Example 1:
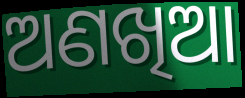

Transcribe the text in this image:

ଅଣଖିଆ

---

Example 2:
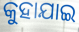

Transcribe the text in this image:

କୁହାଯାଇ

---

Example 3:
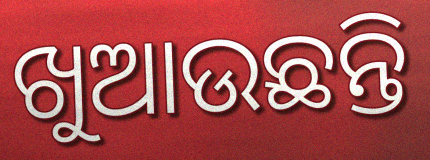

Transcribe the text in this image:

ଖୁଆଉଛନ୍ତି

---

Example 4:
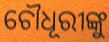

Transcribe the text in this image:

ଚୌଧୂରୀଙ୍କୁ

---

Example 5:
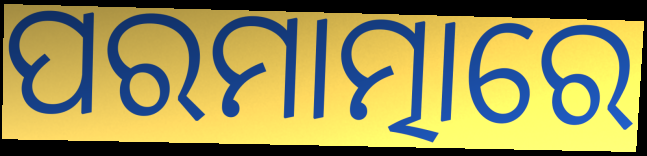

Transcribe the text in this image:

ପରମାତ୍ମାରେ